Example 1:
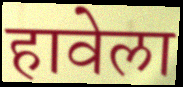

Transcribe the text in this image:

हावेला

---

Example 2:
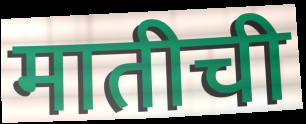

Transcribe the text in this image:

मातीची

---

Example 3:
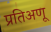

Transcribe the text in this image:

प्रतिअणू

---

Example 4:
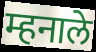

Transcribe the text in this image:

म्हनाले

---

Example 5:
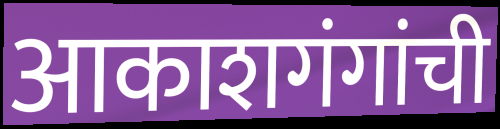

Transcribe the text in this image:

आकाशगंगांची